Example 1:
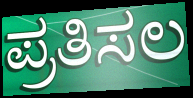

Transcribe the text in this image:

ಪ್ರತಿಸಲ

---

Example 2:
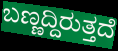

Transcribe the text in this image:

ಬಣ್ಣದ್ದಿರುತ್ತದೆ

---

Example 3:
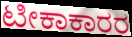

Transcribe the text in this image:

ಟೀಕಾಕಾರರ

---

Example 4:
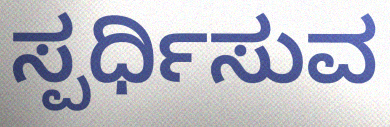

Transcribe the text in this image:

ಸ್ಪರ್ಧಿಸುವ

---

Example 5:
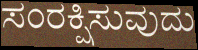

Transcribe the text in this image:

ಸಂರಕ್ಷಿಸುವುದು